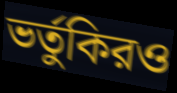
ভর্তুকিরও